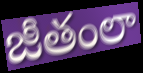
జీతంలా